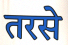
तरसे